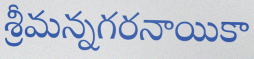
శ్రీమన్నగరనాయికా